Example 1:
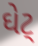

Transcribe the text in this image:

ઘેટ્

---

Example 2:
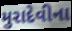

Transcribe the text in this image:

મુરાદેવીના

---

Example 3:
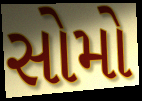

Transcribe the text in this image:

સોમો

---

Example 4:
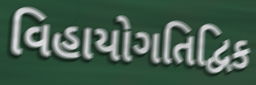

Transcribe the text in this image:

વિહાયોગતિદ્વિક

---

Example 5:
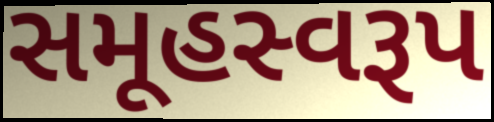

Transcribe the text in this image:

સમૂહસ્વરૂપ